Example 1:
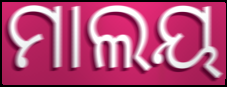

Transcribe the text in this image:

ମାଲୟ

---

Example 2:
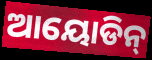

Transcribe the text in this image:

ଆୟୋଡିନ୍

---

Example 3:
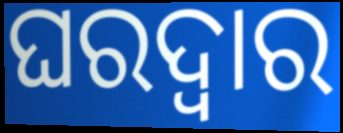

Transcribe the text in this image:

ଘରଦ୍ବାର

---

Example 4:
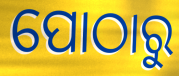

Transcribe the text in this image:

ପୋଠାରୁ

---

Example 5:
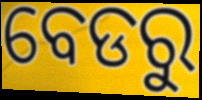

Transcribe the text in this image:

ବେଡରୁ